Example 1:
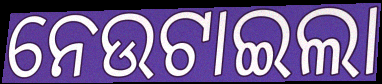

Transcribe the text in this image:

ନେଉଟାଇଲା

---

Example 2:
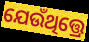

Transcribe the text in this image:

ଯେଉଁଥିତ୍ତ୍ରେ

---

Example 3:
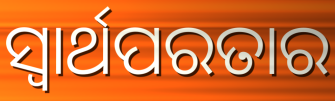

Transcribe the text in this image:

ସ୍ଵାର୍ଥପରତାର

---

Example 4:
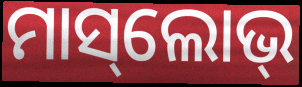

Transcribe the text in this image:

ମାସ୍‌ଲୋଭ୍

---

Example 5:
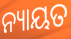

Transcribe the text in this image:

ନ୍ୟାୟତ